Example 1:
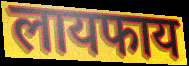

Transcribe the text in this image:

लायफाय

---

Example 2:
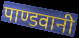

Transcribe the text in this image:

पाण्डवानी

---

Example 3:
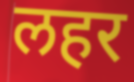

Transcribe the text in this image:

लहर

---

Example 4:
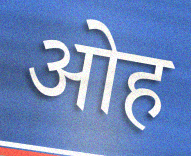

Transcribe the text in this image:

ओह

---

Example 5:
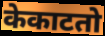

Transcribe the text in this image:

केकाटतो